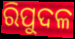
ରିପୁଦଳ